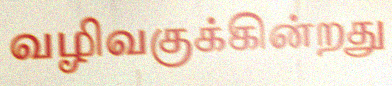
வழிவகுக்கின்றது